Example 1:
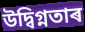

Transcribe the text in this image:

উদ্বিগ্নতাৰ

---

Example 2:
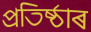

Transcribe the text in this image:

প্ৰতিষ্ঠাৰ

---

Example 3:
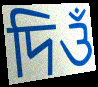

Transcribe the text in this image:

দিওঁ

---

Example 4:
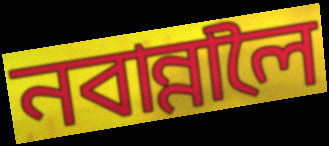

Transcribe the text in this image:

নবান্নালৈ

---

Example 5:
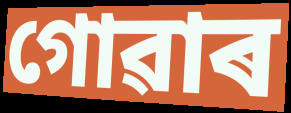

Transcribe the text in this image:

গোৱাৰ